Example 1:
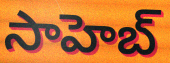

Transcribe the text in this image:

సాహెబ్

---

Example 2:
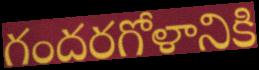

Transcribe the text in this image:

గందరగోళానికి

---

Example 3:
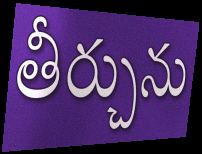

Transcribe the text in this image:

తీర్చును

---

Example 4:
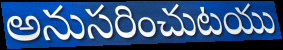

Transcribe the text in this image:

అనుసరించుటయు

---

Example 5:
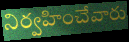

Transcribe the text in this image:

నిర్వహించేవారు